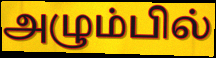
அழும்பில்